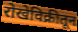
रोखेविक्रीतून